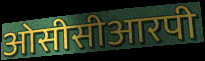
ओसीसीआरपी